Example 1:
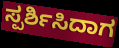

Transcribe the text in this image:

ಸ್ಪರ್ಶಿಸಿದಾಗ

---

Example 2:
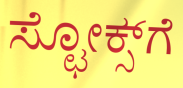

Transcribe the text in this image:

ಸ್ಟೋಕ್ಸ್‌ಗೆ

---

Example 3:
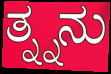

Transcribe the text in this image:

ತ್ನ್ನನು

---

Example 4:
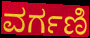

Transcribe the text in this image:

ವರ್ಗಣಿ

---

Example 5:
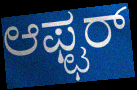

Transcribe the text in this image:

ಆಫ್ಟರ್